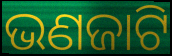
ଭଣଜାଟି